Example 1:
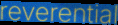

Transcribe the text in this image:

reverential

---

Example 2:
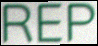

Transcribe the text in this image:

REP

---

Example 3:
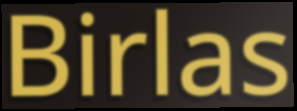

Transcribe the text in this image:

Birlas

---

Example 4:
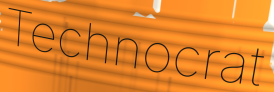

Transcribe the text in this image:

Technocrat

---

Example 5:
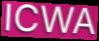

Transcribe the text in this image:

ICWA